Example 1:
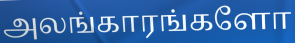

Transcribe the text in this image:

அலங்காரங்களோ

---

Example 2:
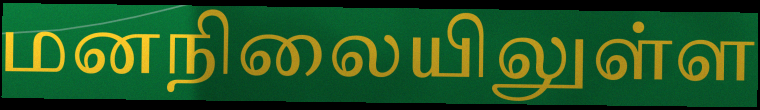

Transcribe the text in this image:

மனநிலையிலுள்ள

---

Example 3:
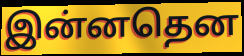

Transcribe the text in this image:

இன்னதென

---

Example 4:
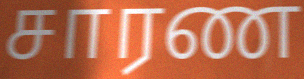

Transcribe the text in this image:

சாரண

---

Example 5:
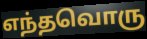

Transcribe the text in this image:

எந்தவொரு